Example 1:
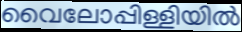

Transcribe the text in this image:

വൈലോപ്പിള്ളിയിൽ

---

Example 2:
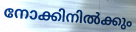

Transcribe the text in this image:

നോക്കിനിൽക്കും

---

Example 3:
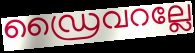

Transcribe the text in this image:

ഡ്രൈവറല്ലേ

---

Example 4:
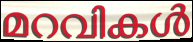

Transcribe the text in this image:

മറവികൾ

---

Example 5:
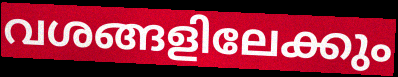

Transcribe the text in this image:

വശങ്ങളിലേക്കും